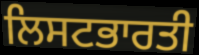
ਲਿਸਟਭਾਰਤੀ